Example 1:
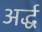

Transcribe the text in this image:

अर्द्ध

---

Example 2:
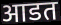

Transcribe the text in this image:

आडत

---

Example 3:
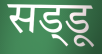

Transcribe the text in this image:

सड्‌डू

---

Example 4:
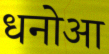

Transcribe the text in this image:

धनोआ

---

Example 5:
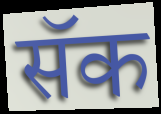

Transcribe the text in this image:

सॅक